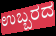
ಉಬ್ಬರದ